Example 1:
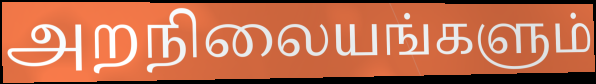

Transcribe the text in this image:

அறநிலையங்களும்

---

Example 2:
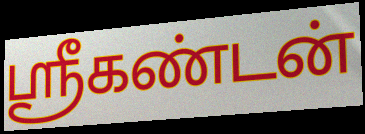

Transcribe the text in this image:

ஸ்ரீகண்டன்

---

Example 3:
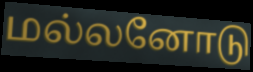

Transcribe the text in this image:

மல்லனோடு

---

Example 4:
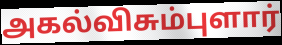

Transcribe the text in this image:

அகல்விசும்புளார்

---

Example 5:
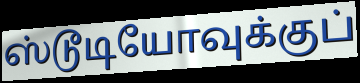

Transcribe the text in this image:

ஸ்டூடியோவுக்குப்